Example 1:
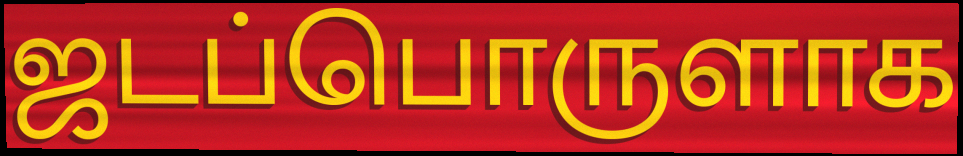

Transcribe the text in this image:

ஜடப்பொருளாக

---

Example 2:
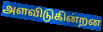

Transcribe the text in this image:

அளவிடுகின்றன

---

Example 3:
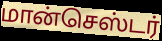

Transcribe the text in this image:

மான்செஸ்டர்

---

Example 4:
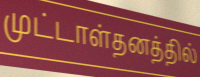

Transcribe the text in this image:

முட்டாள்தனத்தில்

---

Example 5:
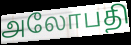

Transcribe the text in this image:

அலோபதி